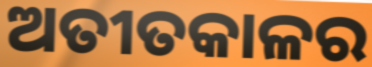
ଅତୀତକାଳର